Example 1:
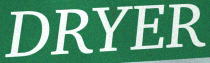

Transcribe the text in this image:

DRYER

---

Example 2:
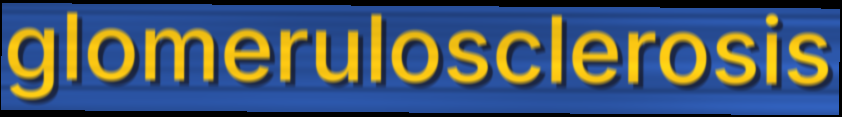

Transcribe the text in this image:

glomerulosclerosis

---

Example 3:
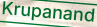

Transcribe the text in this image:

Krupanand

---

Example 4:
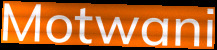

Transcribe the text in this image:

Motwani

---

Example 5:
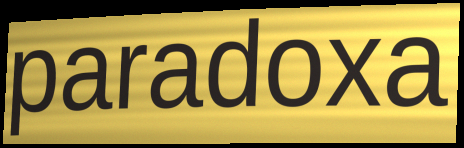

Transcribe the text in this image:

paradoxa